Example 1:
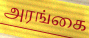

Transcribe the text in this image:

அரங்கை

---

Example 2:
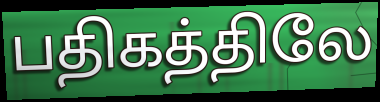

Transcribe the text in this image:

பதிகத்திலே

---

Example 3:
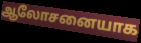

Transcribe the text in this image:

ஆலோசனையாக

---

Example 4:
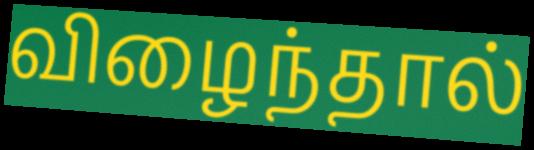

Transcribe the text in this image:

விழைந்தால்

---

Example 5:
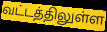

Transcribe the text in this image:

வட்டத்திலுள்ள